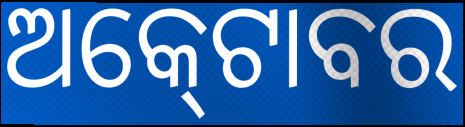
ଅକ୍‍ଟୋବର